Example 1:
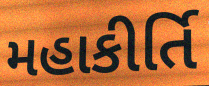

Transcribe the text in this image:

મહાકીર્તિ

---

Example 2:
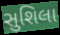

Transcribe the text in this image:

સુશિલા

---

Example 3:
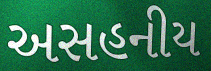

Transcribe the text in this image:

અસહનીય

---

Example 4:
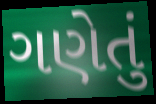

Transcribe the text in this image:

ગણેતું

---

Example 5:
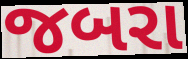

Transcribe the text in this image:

જબરા